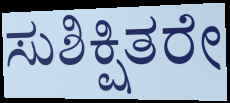
ಸುಶಿಕ್ಷಿತರೇ